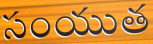
సంయుత